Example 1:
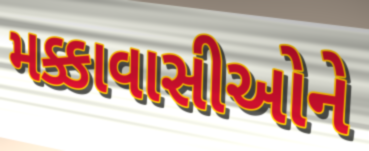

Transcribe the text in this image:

મક્કાવાસીઓને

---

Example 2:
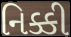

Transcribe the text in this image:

નિક્કી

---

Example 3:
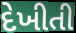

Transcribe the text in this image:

દેખીતી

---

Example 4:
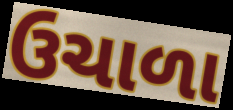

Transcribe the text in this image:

ઉચાળા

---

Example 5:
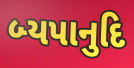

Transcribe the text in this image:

બ્યપાનુદિ